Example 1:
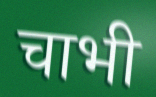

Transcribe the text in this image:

चाभी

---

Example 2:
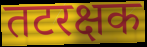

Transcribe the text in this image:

तटरक्षक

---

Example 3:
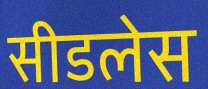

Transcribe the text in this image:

सीडलेस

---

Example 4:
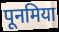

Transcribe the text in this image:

पूनमिया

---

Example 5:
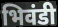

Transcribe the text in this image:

भिवंडी